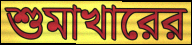
শুমাখারের